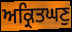
ਅਕ੍ਰਿਤਘਣੁ